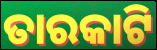
ତାରକାଟି